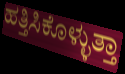
ಹತ್ತಿಸಿಕೊಳ್ಳುತ್ತಾ